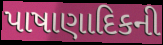
પાષાણાદિકની